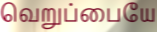
வெறுப்பையே